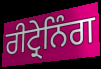
ਰੀਟ੍ਰੇਨਿੰਗ